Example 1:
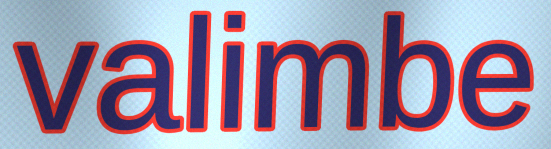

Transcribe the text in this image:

valimbe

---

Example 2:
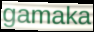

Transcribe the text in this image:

gamaka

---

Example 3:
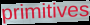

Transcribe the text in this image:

primitives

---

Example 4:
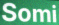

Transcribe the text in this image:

Somi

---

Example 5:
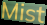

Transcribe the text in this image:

Mist